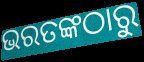
ଭରତଙ୍କଠାରୁ